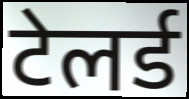
टेलर्ड